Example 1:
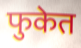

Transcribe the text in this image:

फुकेत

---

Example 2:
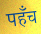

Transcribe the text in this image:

पहँच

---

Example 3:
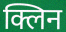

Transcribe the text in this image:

क्लिन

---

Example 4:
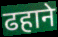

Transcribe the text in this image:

ढहाने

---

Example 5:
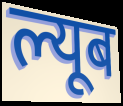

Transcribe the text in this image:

ल्यूब